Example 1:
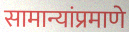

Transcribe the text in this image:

सामान्यांप्रमाणे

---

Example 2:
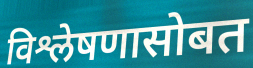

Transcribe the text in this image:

विश्लेषणासोबत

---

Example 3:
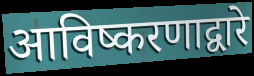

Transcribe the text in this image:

आविष्करणाद्वारे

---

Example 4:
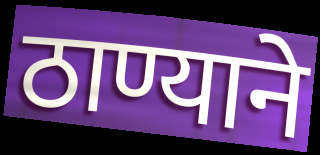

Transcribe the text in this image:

ठाण्याने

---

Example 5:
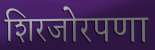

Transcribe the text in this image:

शिरजोरपणा